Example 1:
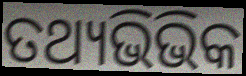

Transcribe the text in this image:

ତଥ୍ୟଭିଭିକ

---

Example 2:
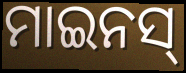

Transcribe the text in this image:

ମାଇନସ୍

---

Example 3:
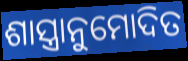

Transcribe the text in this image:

ଶାସ୍ତ୍ରାନୁମୋଦିତ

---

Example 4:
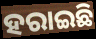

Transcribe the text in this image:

ହରାଇଛି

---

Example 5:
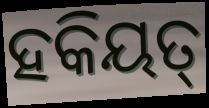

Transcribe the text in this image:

ହକିୟତ୍